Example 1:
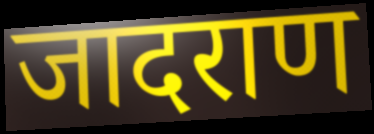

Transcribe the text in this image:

जादराण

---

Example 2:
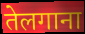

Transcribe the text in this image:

तेलगाना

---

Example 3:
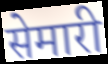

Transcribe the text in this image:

सेमारी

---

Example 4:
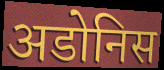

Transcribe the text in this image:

अडोनिस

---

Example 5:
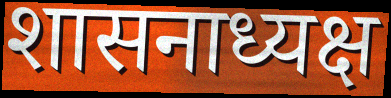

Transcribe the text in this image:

शासनाध्यक्ष